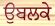
ਉਬਲਕੇ